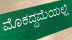
ಮೊಕದ್ದಮೆಯಲ್ಲಿ